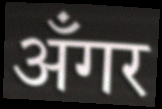
अँगर